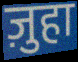
ज़ुहा